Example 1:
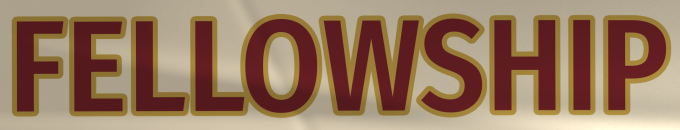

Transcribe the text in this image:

FELLOWSHIP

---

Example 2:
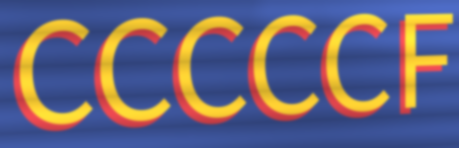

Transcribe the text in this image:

CCCCCF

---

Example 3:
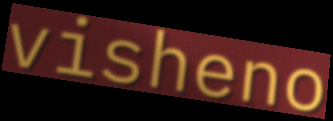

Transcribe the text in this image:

visheno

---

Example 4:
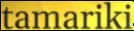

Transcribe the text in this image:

tamariki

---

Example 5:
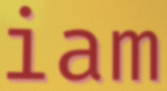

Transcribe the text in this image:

iam